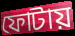
ফোটায়